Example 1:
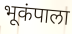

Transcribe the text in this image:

भूकंपाला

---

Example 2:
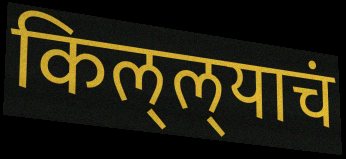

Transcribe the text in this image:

किल्ल्याचं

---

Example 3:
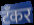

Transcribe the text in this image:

टँकर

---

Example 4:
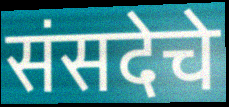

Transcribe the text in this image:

संसदेचे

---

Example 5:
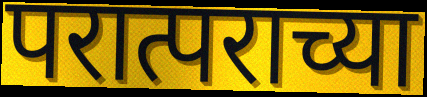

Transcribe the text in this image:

परात्पराच्या